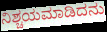
ನಿಶ್ಚಯಮಾಡಿದನು